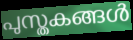
പുസ്തകങ്ങൾ